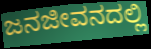
ಜನಜೀವನದಲ್ಲಿ